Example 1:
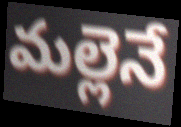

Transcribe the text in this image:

మల్లెనే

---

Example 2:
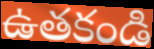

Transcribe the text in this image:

ఉతకండి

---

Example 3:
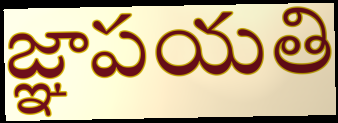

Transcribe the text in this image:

జ్ఞాపయతి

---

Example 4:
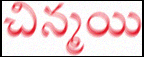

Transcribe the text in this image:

చిన్మయి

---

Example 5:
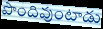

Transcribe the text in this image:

పొందివుంటాడు